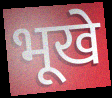
भूखे